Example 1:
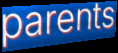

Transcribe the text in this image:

parents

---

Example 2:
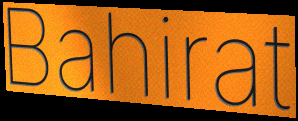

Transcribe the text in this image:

Bahirat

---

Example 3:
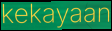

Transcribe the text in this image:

kekayaan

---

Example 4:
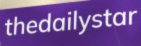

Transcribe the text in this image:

thedailystar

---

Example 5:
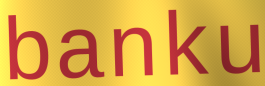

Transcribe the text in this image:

banku